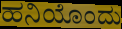
ಹನಿಯೊಂದು